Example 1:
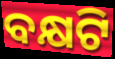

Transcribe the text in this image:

ବକ୍ଷଟି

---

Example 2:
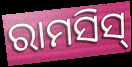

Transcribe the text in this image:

ରାମସିସ୍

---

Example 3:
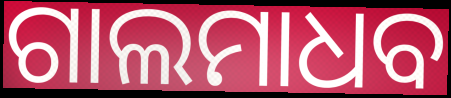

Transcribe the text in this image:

ଗାଲମାଧବ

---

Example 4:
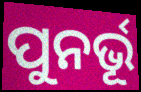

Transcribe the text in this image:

ପୁନର୍ଭୂ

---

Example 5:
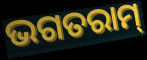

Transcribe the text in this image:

ଭଗତରାମ୍